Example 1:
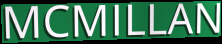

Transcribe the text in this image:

MCMILLAN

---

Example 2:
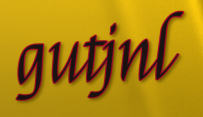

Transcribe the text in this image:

gutjnl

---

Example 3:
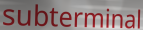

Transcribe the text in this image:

subterminal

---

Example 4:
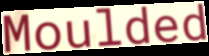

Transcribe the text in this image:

Moulded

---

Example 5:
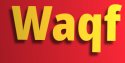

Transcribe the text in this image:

Waqf